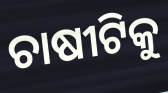
ଚାଷୀଟିକୁ